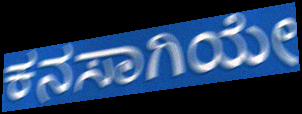
ಕನಸಾಗಿಯೇ